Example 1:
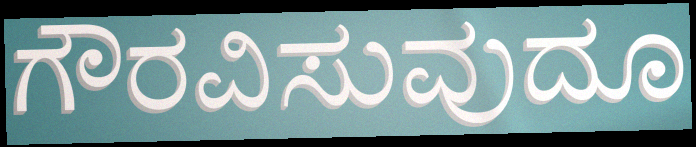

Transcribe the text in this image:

ಗೌರವಿಸುವುದೂ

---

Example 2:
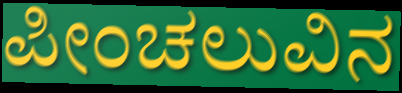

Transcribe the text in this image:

ಪೀಂಚಲುವಿನ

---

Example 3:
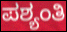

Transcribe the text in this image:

ಪಶ್ಯಂತಿ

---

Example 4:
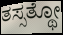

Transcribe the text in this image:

ತಸ್ಸತ್ಥೋ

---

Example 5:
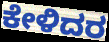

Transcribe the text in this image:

ಕೇಳಿದರ